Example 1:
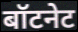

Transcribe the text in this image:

बॉटनेट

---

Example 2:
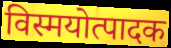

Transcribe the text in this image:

विस्मयोत्पादक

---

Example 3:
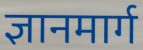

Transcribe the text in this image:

ज्ञानमार्ग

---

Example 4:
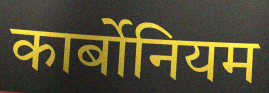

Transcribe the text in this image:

कार्बोनियम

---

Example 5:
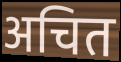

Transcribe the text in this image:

अचित